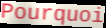
Pourquoi